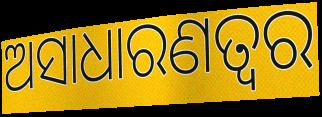
ଅସାଧାରଣତ୍ୱର